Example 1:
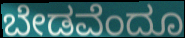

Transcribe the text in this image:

ಬೇಡವೆಂದೂ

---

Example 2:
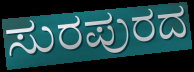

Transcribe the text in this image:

ಸುರಪುರದ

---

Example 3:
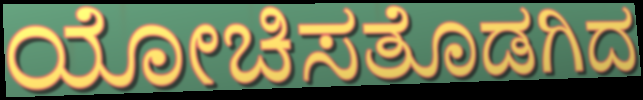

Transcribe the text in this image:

ಯೋಚಿಸತೊಡಗಿದ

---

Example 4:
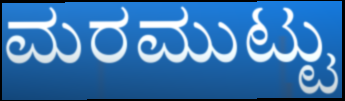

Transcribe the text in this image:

ಮರಮುಟ್ಟು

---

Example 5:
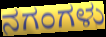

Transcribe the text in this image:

ನಗಂಗಳು